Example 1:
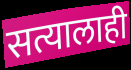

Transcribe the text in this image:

सत्यालाही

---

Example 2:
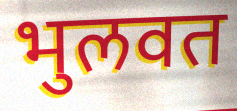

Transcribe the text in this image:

भुलवत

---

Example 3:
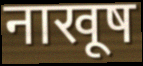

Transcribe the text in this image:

नाखूष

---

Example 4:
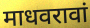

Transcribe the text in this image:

माधवरावां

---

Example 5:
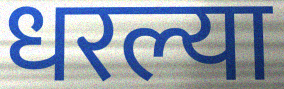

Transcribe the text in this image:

धरल्या